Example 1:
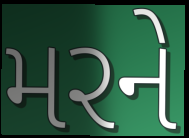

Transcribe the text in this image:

મરને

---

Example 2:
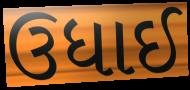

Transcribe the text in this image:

ઉધાઈ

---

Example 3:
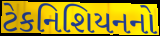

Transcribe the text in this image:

ટેકનિશિયનનો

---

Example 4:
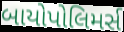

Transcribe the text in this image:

બાયોપોલિમર્સ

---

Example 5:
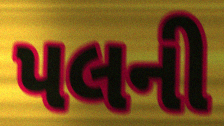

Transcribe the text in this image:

પલની